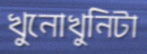
খুনোখুনিটা